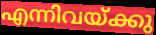
എന്നിവയ്ക്കു